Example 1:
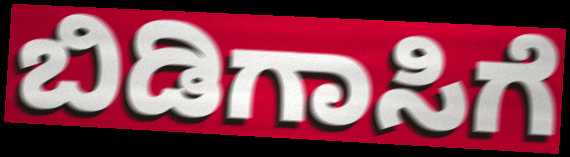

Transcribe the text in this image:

ಬಿಡಿಗಾಸಿಗೆ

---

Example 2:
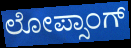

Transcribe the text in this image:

ಲೋಪ್ಸಾಂಗ್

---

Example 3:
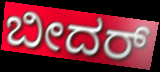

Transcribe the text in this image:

ಬೀದರ್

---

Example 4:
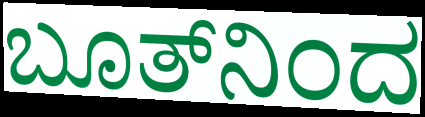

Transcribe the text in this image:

ಬೂತ್‌ನಿಂದ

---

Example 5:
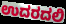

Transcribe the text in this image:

ಉದರದಲಿ